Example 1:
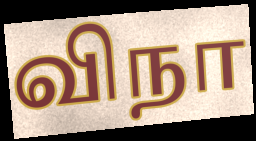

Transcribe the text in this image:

விநா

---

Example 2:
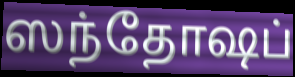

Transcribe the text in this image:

ஸந்தோஷப்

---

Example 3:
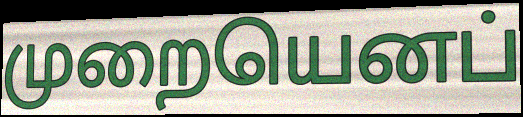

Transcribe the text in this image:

முறையெனப்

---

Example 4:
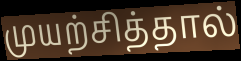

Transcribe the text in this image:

முயற்சித்தால்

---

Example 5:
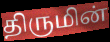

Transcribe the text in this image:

திருமின்